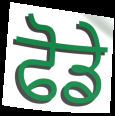
ਫੋਡੇ